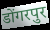
डोंगरपुर